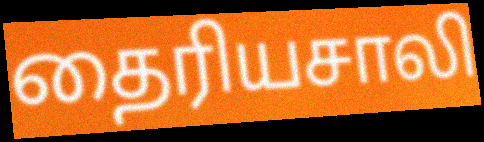
தைரியசாலி